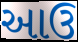
આઉ